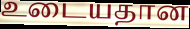
உடையதான